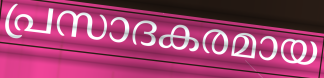
പ്രസാദകരമായ